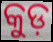
କୁଡ଼